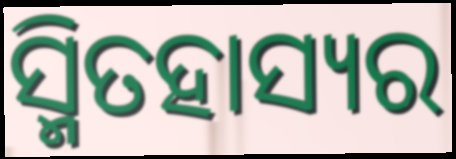
ସ୍ମିତହାସ୍ୟର